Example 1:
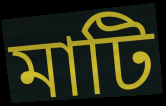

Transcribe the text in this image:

মাটি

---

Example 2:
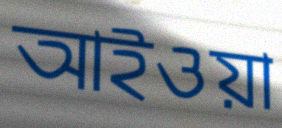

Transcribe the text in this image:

আইওয়া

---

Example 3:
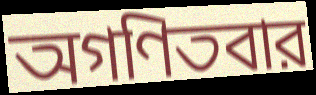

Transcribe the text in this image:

অগণিতবার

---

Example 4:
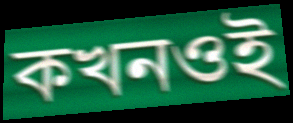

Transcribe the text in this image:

কখনওই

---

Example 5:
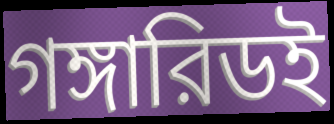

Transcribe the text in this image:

গঙ্গারিডই